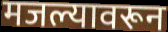
मजल्यावरून